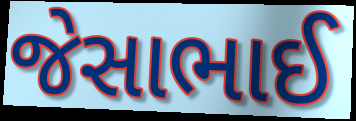
જેસાભાઈ